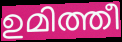
ഉമിത്തീ